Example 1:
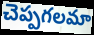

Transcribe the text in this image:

చెప్పగలమా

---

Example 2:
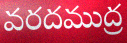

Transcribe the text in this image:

వరదముద్ర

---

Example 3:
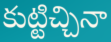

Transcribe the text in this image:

కుట్టిచ్చినా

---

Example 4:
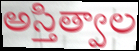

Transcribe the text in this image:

అస్తిత్వాల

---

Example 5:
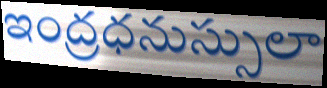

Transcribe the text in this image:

ఇంద్రధనుస్సులా